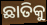
ଛାତିକୁ